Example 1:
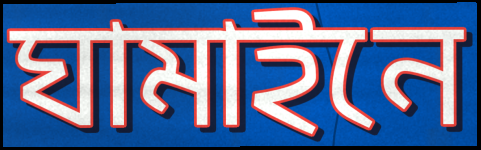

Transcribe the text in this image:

ঘামাইনে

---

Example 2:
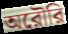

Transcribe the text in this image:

অরৌরি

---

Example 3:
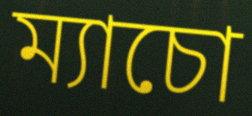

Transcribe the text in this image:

ম্যাচো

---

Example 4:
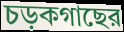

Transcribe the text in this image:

চড়কগাছের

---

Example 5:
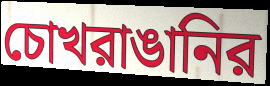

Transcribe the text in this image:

চোখরাঙানির